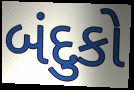
બંદુકો